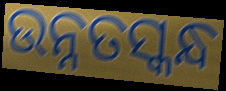
ଉନ୍ନତସ୍କନ୍ଧ